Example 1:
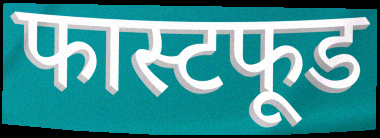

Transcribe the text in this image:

फास्टफूड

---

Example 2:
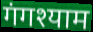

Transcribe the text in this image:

गंगश्याम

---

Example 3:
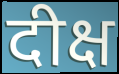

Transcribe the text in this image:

दीक्ष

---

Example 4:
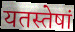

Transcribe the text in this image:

यतस्तेषां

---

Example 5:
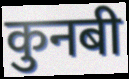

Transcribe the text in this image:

कुनबी